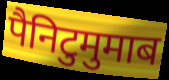
पैनिटुमुमाब